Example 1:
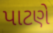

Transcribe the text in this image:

પાટણે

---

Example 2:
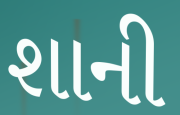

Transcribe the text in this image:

શાની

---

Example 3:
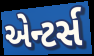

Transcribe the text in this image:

એન્ટર્સ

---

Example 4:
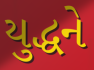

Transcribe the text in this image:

યુદ્ધને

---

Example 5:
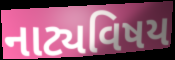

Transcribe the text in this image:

નાટ્યવિષય